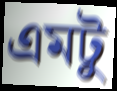
এমটু